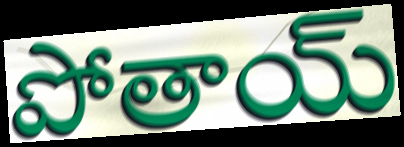
పోతాయ్